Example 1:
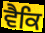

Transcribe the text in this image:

ਵੈਕਿ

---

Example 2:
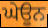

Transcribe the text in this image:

ਘੇਊਨ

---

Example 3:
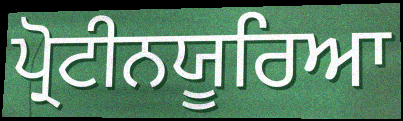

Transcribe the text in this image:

ਪ੍ਰੋਟੀਨਯੂਰਿਆ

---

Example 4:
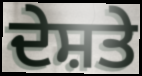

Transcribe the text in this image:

ਦੇਸ਼ਤੇ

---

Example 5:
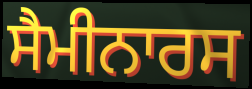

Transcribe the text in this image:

ਸੈਮੀਨਾਰਸ